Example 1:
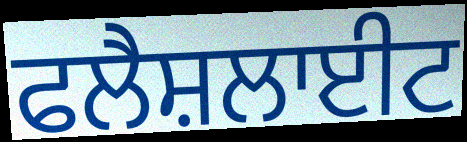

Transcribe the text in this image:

ਫਲੈਸ਼ਲਾਈਟ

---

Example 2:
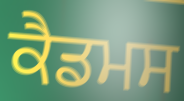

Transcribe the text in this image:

ਕੈਡਮਸ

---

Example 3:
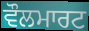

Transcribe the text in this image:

ਵੌਲਮਾਰਟ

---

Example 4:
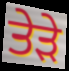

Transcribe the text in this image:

ਤੇੜੇ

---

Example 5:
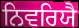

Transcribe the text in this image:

ਨਿਵਰਿਯੈ